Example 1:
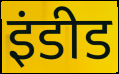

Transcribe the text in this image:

इंडीड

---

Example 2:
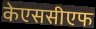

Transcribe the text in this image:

केएससीएफ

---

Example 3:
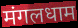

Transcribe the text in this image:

मंगलधाम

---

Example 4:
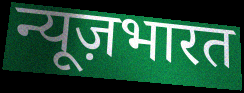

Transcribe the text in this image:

न्यूज़भारत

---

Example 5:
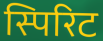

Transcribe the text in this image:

स्पिरिट